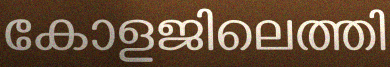
കോളജിലെത്തി